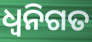
ଧ୍ଵନିଗତ